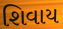
શિવાય